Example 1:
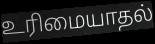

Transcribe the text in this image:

உரிமையாதல்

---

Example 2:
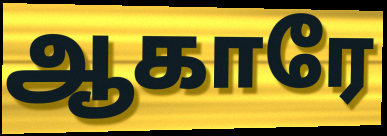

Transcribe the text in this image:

ஆகாரே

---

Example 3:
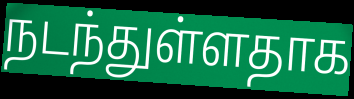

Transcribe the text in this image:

நடந்துள்ளதாக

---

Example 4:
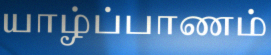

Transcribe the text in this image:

யாழ்ப்பாணம்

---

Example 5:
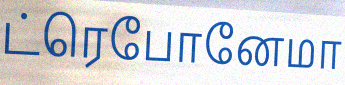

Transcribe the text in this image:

ட்ரெபோனேமா